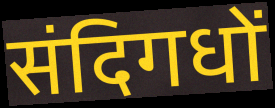
संदिगधों